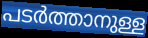
പടർത്താനുള്ള